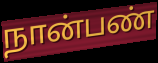
நான்பண்